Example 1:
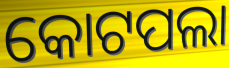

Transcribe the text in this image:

କୋଟପଲା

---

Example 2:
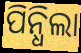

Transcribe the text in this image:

ପିନ୍ଧିଲା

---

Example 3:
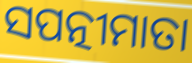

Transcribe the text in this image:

ସପତ୍ନୀମାତା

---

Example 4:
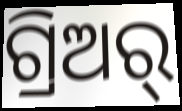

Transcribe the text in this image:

ଗ୍ରିଅର୍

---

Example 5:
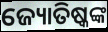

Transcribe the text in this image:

ଜ୍ୟୋତିଷ୍କଙ୍କ